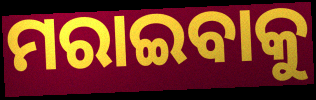
ମରାଇବାକୁ